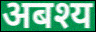
अबश्य